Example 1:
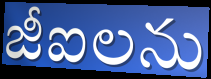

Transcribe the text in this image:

జీఐలను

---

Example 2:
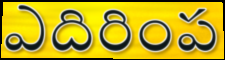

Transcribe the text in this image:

ఎదిరింప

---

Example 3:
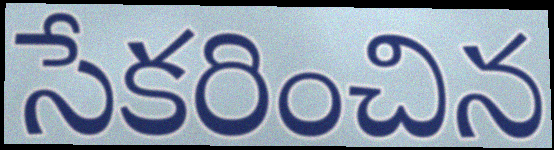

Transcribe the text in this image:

సేకరించిన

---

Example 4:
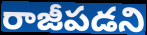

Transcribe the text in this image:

రాజీపడని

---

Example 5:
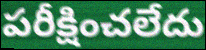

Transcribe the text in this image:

పరీక్షించలేదు